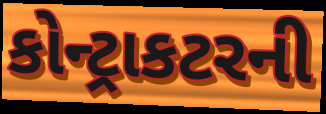
કોન્ટ્રાકટરની